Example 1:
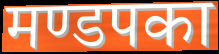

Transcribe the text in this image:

मण्डपका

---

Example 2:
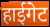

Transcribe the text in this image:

हाईगेट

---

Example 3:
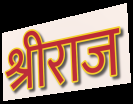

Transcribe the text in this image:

श्रीराज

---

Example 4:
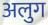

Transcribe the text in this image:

अलुग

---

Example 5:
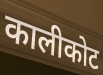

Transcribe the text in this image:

कालीकोट